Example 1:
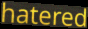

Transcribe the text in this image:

hatered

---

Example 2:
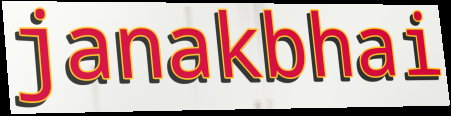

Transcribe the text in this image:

janakbhai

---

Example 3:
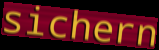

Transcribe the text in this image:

sichern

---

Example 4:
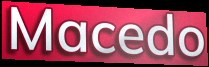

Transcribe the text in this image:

Macedo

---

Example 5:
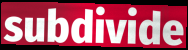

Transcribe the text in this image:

subdivide